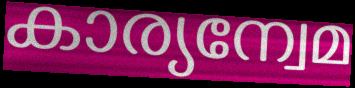
കാര്യന്വേമ